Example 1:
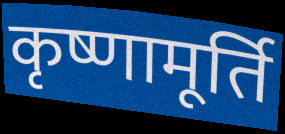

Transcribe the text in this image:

कृष्णामूर्ति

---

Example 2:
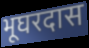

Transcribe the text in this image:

भूघरदास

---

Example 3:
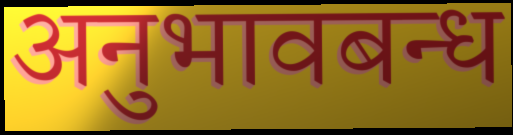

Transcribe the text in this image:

अनुभावबन्ध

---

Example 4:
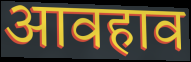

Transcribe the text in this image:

आवहाव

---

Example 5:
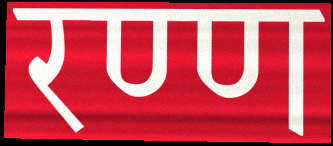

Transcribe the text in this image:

रण्ण